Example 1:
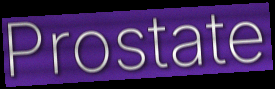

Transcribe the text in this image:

Prostate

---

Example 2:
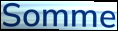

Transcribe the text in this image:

Somme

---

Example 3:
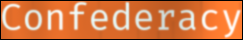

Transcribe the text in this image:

Confederacy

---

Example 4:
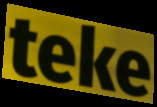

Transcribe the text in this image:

teke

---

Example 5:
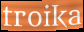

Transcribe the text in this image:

troika